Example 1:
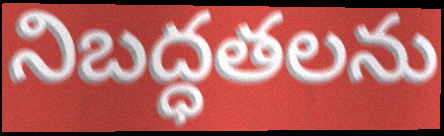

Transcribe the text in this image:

నిబద్ధతలను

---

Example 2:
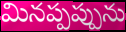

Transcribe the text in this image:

మినప్పప్పును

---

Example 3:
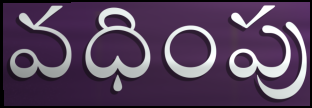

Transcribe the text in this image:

వధింపు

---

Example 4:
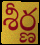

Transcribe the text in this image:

శీర్ణ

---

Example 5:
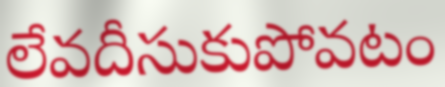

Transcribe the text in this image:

లేవదీసుకుపోవటం